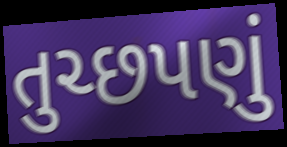
તુચ્છપણું